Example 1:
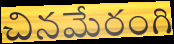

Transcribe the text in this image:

చినమేరంగి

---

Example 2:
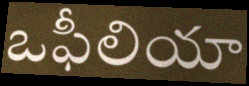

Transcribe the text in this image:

ఒఫీలియా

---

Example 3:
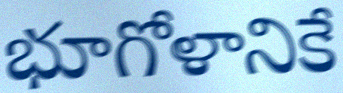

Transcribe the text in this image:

భూగోళానికే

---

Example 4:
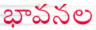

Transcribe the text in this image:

భావనల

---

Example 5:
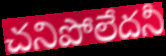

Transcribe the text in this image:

చనిపోలేదనీ